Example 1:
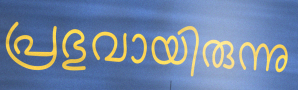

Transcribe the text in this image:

പ്രഭുവായിരുന്നു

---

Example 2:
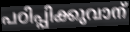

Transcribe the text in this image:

പഠിപ്പിക്കുവാന്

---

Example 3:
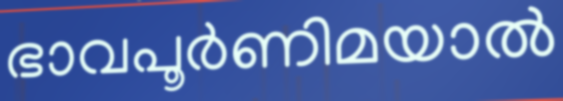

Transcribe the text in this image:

ഭാവപൂർണിമയാൽ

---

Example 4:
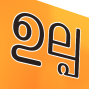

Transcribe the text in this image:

ഉല്പ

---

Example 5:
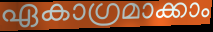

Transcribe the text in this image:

ഏകാഗ്രമാക്കാം